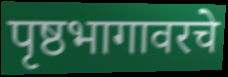
पृष्ठभागावरचे